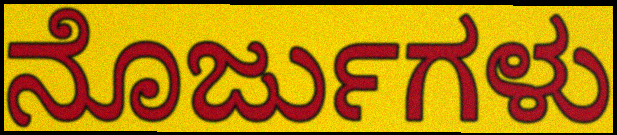
ನೊರ್ಜುಗಳು